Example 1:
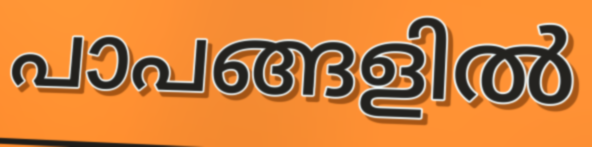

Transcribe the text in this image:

പാപങ്ങളിൽ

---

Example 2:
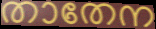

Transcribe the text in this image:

താതേന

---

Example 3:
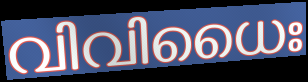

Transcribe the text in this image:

വിവിധൈഃ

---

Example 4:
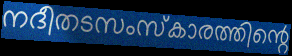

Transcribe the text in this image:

നദീതടസംസ്കാരത്തിന്റെ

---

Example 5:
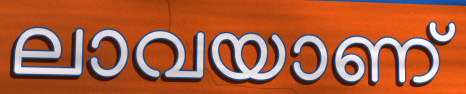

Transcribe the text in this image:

ലാവയാണ്